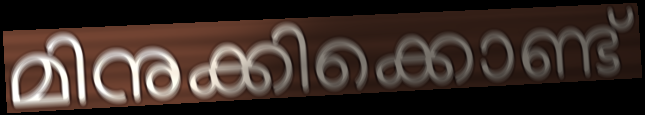
മിനുക്കിക്കൊണ്ട്